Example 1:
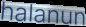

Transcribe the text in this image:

halanun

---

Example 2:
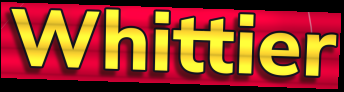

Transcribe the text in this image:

Whittier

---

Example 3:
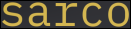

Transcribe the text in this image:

sarco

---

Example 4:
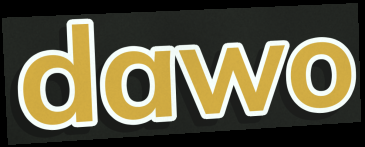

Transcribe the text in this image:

dawo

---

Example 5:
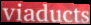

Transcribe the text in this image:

viaducts